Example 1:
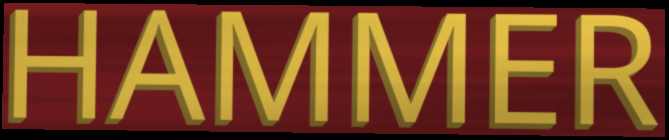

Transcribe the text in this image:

HAMMER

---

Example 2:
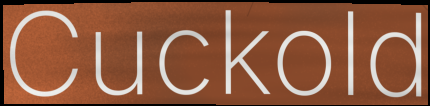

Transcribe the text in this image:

Cuckold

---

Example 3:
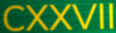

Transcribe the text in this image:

CXXVII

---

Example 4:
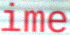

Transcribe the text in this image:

ime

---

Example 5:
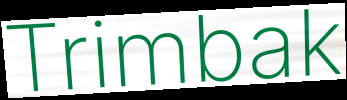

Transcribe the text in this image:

Trimbak